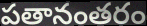
పతానంతరం